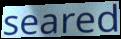
seared